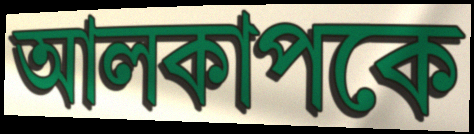
আলকাপকে